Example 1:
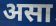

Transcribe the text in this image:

असा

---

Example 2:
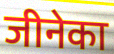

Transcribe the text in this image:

जीनेका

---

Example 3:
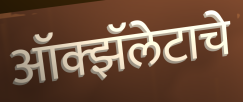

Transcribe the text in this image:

ऑक्झॅलेटाचे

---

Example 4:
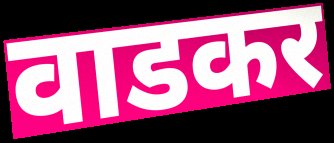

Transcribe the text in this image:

वाडकर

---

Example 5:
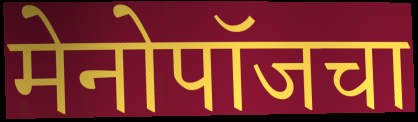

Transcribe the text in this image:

मेनोपॉजचा